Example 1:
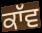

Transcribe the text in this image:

ਕਾੱਵ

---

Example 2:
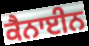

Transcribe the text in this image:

ਕੈਨਾਈਨ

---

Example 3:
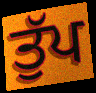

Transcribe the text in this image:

ਤੁੱਪ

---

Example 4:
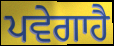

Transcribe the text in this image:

ਪਵੇਗਾਹੈ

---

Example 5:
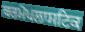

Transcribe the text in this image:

ਥਰਮੋਪਲਾਸਟਿਕ